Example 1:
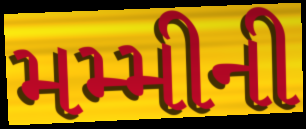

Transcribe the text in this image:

મમ્મીની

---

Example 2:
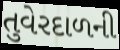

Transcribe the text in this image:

તુવેરદાળની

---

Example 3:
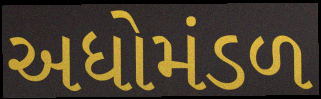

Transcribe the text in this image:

અધોમંડળ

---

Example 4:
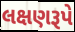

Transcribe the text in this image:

લક્ષણરૂપે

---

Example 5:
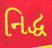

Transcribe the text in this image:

નિદ્ધ